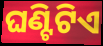
ଘଣ୍ଟିଟିଏ